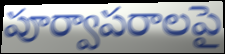
పూర్వాపరాలపై